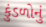
કુંડળોનું